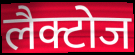
लैक्टोज